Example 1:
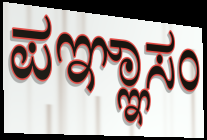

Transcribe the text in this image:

ಪಞ್ಞಾಸಂ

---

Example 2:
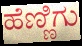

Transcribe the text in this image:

ಹೆಣ್ಣಿಗು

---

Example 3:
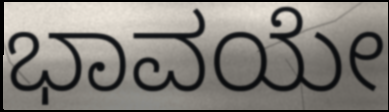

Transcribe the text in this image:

ಭಾವಯೇ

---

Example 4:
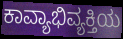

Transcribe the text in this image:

ಕಾವ್ಯಾಭಿವ್ಯಕ್ತಿಯ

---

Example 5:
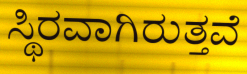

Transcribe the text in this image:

ಸ್ಥಿರವಾಗಿರುತ್ತವೆ